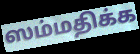
ஸம்மதிக்க